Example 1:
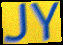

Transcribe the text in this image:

JY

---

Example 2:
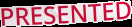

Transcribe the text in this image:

PRESENTED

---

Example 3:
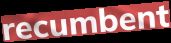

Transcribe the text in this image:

recumbent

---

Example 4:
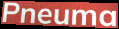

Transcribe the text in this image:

Pneuma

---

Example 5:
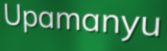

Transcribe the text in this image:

Upamanyu